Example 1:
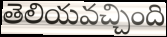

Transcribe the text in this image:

తెలియవచ్చింది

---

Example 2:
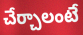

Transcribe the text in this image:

చేర్చాలంటే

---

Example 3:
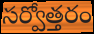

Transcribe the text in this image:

సర్వోత్తరం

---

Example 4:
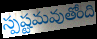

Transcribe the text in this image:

స్పష్టమవుతోంది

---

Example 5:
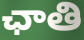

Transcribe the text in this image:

ఛాతి